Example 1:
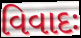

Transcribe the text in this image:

વિવાદઃ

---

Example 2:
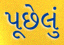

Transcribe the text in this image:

પૂછેલું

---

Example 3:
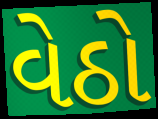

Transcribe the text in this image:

વેઠો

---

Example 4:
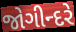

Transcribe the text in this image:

જોગીન્દરે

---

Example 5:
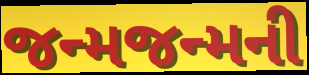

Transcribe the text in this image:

જન્મજન્મની